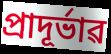
প্ৰাদূৰ্ভাৱ